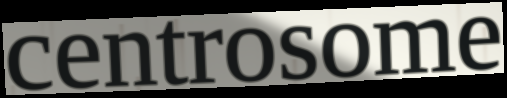
centrosome